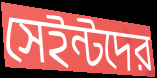
সেইন্টদের